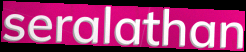
seralathan